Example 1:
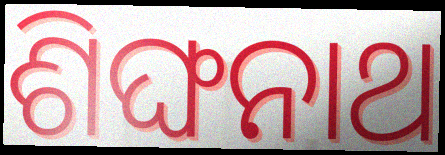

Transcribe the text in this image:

ଶିଙ୍ଘନାଥ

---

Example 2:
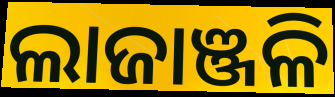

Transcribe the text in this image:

ଲାଜାଞ୍ଜଳି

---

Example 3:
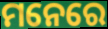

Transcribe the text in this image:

ମନେରେ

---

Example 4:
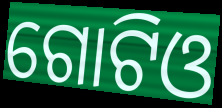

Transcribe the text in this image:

ଗୋଟିଓ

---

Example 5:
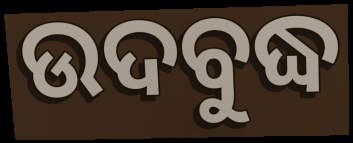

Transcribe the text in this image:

ଉଦବୁଦ୍ଧ